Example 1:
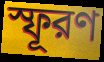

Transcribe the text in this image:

স্ফূরণ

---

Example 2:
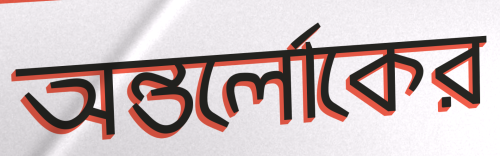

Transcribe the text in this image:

অন্তর্লোকের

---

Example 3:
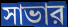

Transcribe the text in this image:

সাভার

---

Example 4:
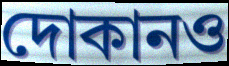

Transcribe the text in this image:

দোকানও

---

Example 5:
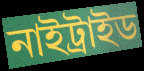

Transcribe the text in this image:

নাইট্রাইড